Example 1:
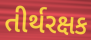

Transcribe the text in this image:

તીર્થરક્ષક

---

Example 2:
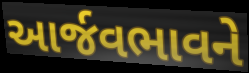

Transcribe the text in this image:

આર્જવભાવને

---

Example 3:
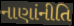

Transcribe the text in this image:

નાણાંનીતિ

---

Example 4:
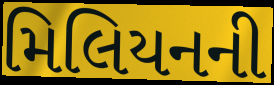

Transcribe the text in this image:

મિલિયનની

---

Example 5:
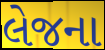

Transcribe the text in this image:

લેજના